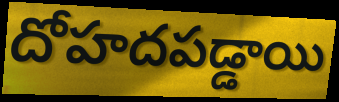
దోహదపడ్డాయి